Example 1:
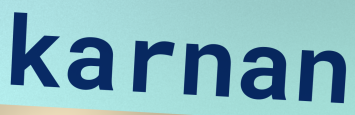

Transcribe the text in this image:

karnan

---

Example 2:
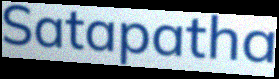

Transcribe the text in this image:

Satapatha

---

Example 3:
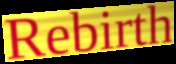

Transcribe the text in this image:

Rebirth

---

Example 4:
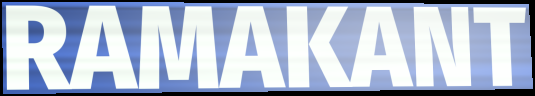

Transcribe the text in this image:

RAMAKANT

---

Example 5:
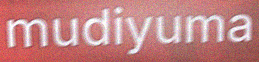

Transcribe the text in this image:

mudiyuma